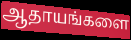
ஆதாயங்களை